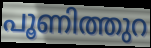
പൂണിത്തുറ